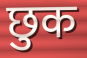
छुक